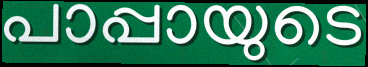
പാപ്പായുടെ